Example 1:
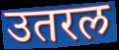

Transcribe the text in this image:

उतरल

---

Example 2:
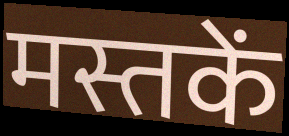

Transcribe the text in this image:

मस्तकें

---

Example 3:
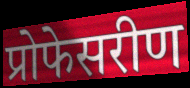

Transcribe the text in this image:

प्रोफेसरीण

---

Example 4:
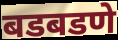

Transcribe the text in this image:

बडबडणे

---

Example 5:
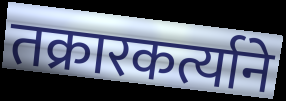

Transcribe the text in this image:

तक्रारकर्त्याने